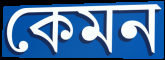
কেমন